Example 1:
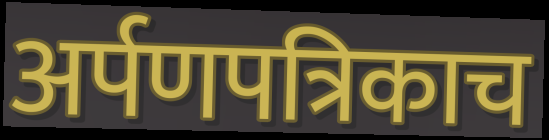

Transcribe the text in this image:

अर्पणपत्रिकाच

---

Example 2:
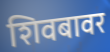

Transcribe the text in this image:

शिवबावर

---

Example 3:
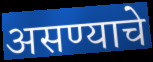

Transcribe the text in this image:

असण्याचे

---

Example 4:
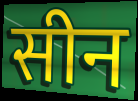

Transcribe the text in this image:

सीन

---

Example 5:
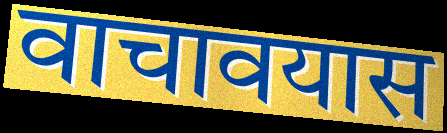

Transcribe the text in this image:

वाचावयास